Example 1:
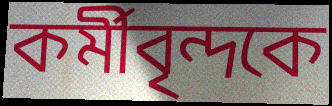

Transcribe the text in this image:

কর্মীবৃন্দকে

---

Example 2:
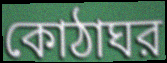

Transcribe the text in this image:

কোঠাঘর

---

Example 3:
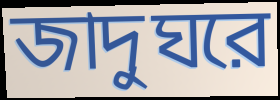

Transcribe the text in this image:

জাদুঘরে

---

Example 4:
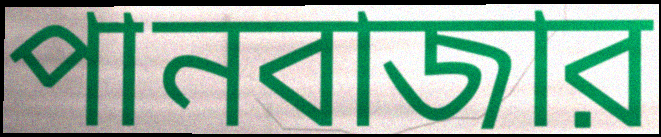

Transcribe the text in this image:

পানবাজার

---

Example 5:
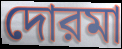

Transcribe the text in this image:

দোরমা